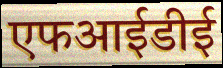
एफआईडीई